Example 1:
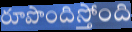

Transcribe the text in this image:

రూపొందిస్తోంది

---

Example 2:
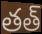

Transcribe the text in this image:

తత్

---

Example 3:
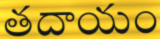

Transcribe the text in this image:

తదాయం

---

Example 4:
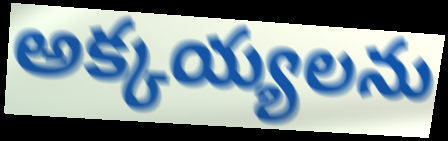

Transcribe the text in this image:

అక్కయ్యలను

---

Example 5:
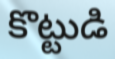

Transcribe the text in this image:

కొట్టుడి